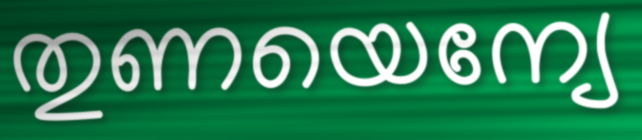
തുണയെന്യേ